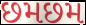
છમછમ